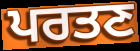
ਪਰਤਣ